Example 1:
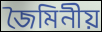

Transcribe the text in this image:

জৈমিনীয়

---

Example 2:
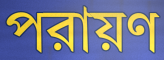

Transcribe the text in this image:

পরায়ণ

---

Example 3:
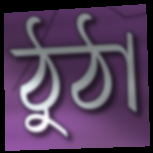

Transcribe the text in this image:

ঠুঠা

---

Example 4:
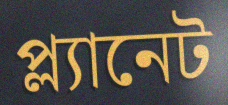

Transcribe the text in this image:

প্ল্যানেট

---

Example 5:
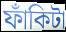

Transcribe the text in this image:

ফাঁকিটা